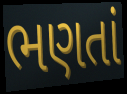
ભણતાં